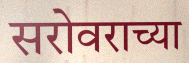
सरोवराच्या